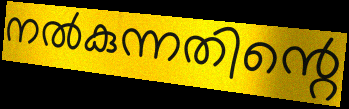
നൽകുന്നതിന്റെ